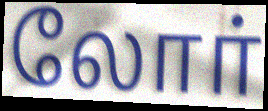
லோர்